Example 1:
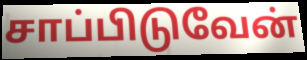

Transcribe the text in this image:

சாப்பிடுவேன்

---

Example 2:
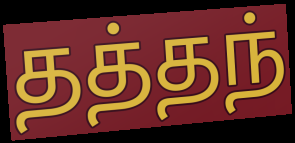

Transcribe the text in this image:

தத்தந்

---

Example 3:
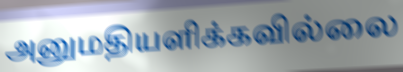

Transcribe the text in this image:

அனுமதியளிக்கவில்லை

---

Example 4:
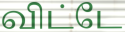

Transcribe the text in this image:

விட்டே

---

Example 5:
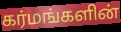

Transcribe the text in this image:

கர்மங்களின்